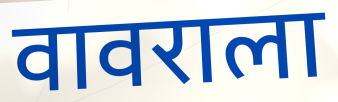
वावराला